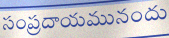
సంప్రదాయమునందు